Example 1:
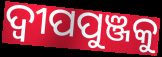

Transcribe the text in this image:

ଦ୍ଵୀପପୁଞ୍ଜକୁ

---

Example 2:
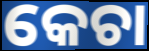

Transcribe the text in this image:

କେଚା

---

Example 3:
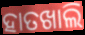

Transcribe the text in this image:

ହାତଖାଲି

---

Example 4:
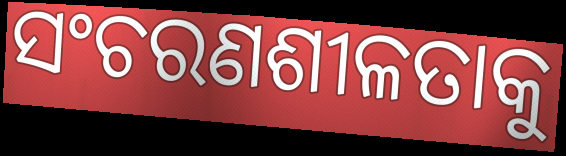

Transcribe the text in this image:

ସଂଚରଣଶୀଳତାକୁ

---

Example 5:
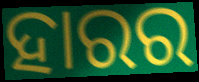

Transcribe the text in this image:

ହାରର